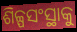
ଶିଳ୍ପସଂସ୍ଥାକୁ